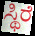
ಸ್ಥಿರೆ